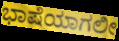
ಭಾಷೆಯಾಗಲೀ